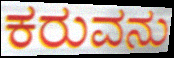
ಕರುವನು